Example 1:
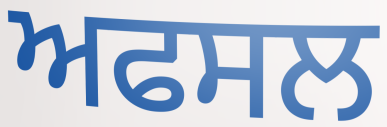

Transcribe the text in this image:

ਅਫਸਲ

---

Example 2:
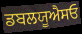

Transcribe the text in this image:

ਡਬਲਯੂਐਸਓ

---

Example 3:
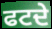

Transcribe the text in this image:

ਫਟਦੇ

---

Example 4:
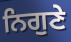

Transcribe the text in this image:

ਨਿਗੁਣੇ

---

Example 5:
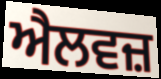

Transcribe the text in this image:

ਐਲਵਜ਼